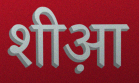
शीआ़